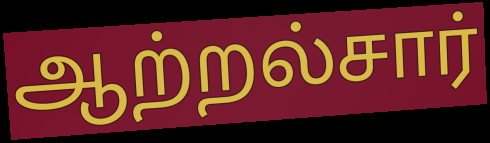
ஆற்றல்சார்